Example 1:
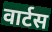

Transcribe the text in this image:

वार्टस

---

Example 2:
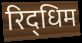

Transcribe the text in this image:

रिद्धिम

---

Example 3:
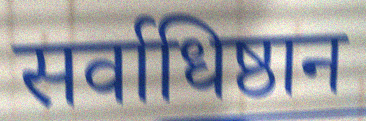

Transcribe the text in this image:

सर्वाधिष्ठान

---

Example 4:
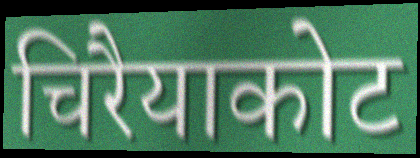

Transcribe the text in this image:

चिरैयाकोट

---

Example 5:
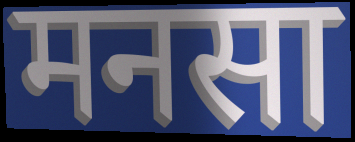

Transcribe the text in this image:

मनसा